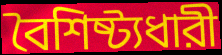
বৈশিষ্ট্যধারী